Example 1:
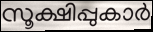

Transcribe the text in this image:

സൂക്ഷിപ്പുകാർ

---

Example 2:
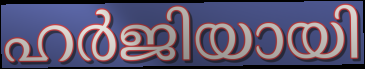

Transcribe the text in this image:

ഹർജിയായി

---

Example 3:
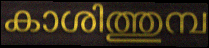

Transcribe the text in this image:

കാശിത്തുമ്പ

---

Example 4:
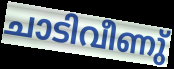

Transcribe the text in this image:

ചാടിവീണു്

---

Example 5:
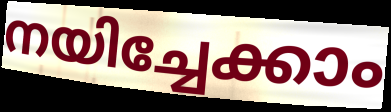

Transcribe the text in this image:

നയിച്ചേക്കാം